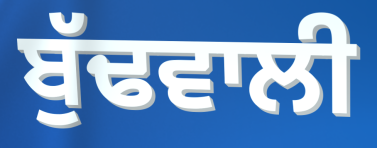
ਬੁੱਢਵਾਲੀ